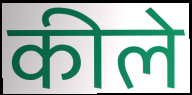
कीले